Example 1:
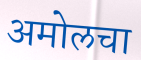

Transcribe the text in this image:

अमोलचा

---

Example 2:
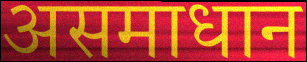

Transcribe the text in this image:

असमाधान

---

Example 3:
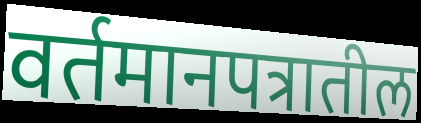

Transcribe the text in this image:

वर्तमानपत्रातील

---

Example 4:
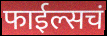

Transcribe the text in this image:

फाईल्सचं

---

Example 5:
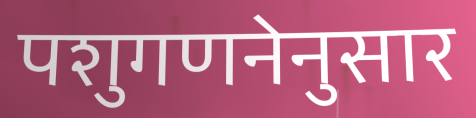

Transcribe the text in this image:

पशुगणनेनुसार